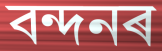
বন্দনৰ